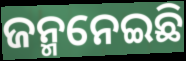
ଜନ୍ମନେଇଛି